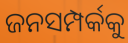
ଜନସମ୍ପର୍କକୁ